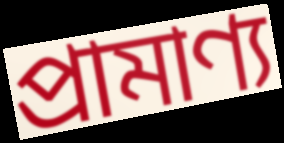
প্রামাণ্য